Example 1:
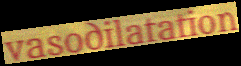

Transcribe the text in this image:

vasodilatation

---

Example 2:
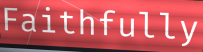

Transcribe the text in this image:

Faithfully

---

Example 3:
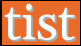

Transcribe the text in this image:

tist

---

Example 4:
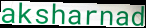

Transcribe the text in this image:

aksharnad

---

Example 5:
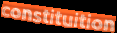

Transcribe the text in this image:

constituition